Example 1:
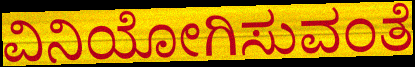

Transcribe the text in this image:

ವಿನಿಯೋಗಿಸುವಂತೆ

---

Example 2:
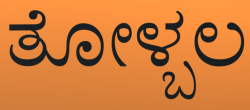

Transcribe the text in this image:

ತೋಳ್ಬಲ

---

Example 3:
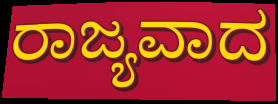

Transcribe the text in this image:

ರಾಜ್ಯವಾದ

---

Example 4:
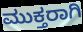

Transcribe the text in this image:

ಮುಕ್ತರಾಗಿ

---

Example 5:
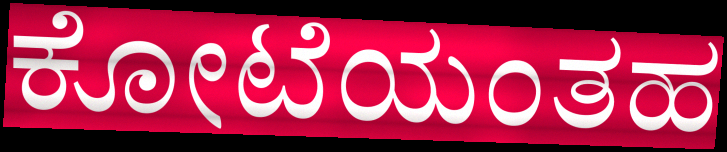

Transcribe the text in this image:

ಕೋಟೆಯಂತಹ